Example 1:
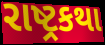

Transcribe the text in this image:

રાષ્ટ્રકથા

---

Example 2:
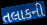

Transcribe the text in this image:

તલાકની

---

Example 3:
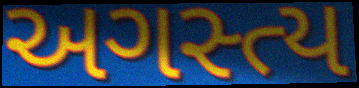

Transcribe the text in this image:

અગસ્ત્ય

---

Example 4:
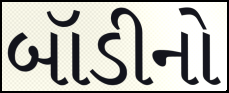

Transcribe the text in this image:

બૉડીનો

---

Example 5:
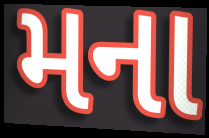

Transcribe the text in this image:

મના